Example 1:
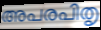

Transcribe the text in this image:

അപരപിതൃ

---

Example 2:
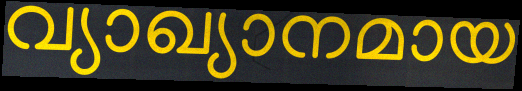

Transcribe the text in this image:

വ്യാഖ്യാനമായ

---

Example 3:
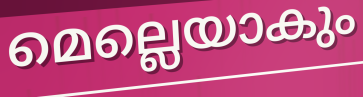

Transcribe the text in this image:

മെല്ലെയാകും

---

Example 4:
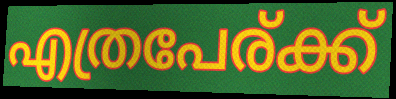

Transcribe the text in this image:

എത്രപേര്ക്ക്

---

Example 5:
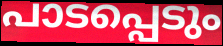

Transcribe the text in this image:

പാടപ്പെടും